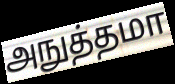
அநுத்தமா